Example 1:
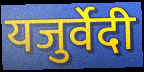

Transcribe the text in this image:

यजुर्वेदी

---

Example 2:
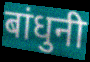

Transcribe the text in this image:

बांधुनी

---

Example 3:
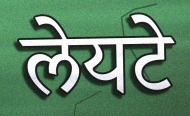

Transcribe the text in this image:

लेयटे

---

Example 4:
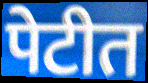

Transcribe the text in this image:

पेटीत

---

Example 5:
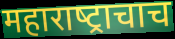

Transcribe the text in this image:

महाराष्ट्राचाच